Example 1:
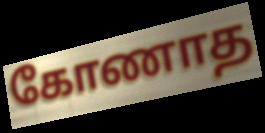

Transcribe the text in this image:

கோணாத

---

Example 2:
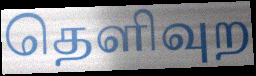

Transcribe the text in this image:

தெளிவுற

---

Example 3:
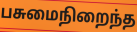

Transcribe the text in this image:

பசுமைநிறைந்த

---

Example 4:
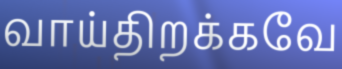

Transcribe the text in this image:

வாய்திறக்கவே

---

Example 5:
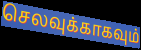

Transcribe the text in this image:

செலவுக்காகவும்